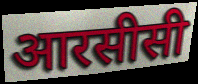
आरसीसी